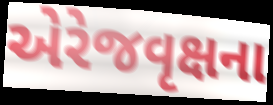
એરેજવૃક્ષના